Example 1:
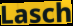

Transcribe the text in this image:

Lasch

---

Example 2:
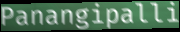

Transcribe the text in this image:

Panangipalli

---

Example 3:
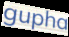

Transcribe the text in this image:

gupha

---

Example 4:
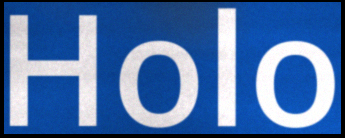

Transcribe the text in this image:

Holo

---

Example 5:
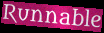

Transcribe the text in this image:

Runnable